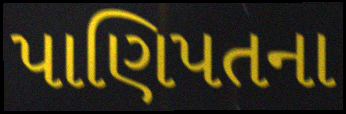
પાણિપતના